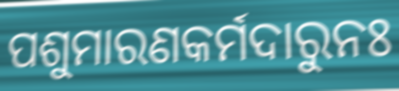
ପଶୁମାରଣକର୍ମଦାରୁନଃ